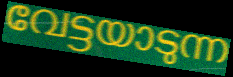
വേട്ടയാടുന്ന